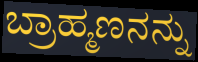
ಬ್ರಾಹ್ಮಣನನ್ನು